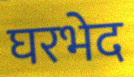
घरभेद